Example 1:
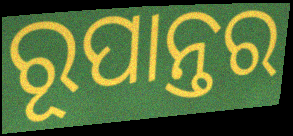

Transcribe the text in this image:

ରୂପାନ୍ତର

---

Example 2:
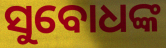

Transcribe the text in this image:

ସୁବୋଧଙ୍କ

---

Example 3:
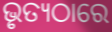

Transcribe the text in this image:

ଭୃତ୍ୟଠାରେ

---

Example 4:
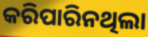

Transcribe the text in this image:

କରିପାରିନଥିଲା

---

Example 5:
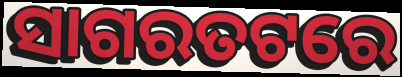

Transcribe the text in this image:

ସାଗରତଟରେ